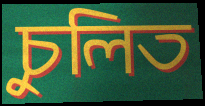
চুলিত